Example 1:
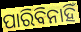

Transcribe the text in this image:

ପାରିବିନାହିଁ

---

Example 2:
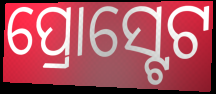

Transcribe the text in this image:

ପ୍ରୋସ୍ଟେଟ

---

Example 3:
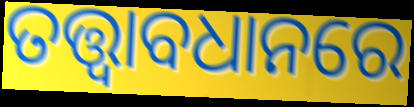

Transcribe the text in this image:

ତତ୍ତ୍ଵାବଧାନରେ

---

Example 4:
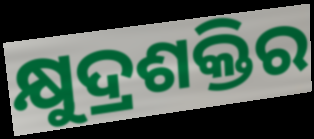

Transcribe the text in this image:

କ୍ଷୁଦ୍ରଶକ୍ତିର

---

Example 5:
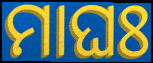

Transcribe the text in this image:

ମାଘଃ